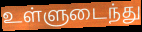
உள்ளுடைந்து